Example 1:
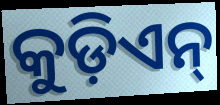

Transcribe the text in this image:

କୁଡ଼ିଏନ୍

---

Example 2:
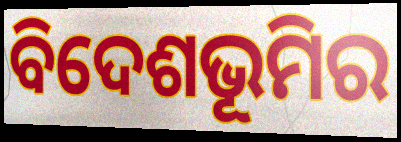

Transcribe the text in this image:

ବିଦେଶଭୂମିର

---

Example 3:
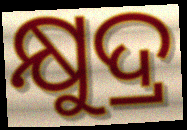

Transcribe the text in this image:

କ୍ଷୁଦ୍ର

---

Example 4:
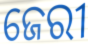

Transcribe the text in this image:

ଜେରୀ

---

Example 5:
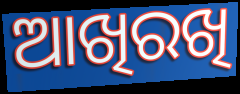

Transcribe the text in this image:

ଆଖିରଖି